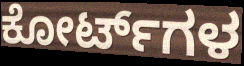
ಕೋರ್ಟ್‌ಗಳ